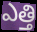
ఎత్తి